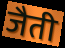
जैती